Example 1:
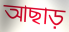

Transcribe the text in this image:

আছাড়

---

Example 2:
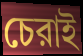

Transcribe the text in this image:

চেরাই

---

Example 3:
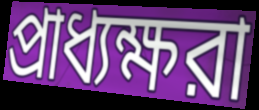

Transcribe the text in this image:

প্রাধ্যক্ষরা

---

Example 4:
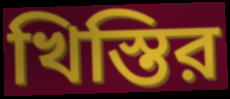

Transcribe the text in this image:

খিস্তির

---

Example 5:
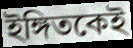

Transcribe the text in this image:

ইঙ্গিতকেই